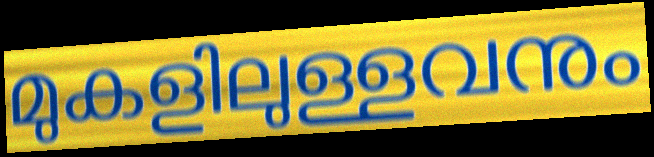
മുകളിലുള്ളവനും